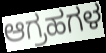
ಆಗ್ರಹಗಳ